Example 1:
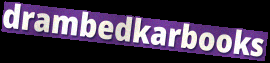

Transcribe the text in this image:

drambedkarbooks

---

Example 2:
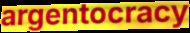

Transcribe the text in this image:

argentocracy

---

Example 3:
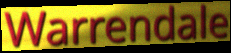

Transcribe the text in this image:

Warrendale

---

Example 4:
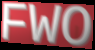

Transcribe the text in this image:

FWO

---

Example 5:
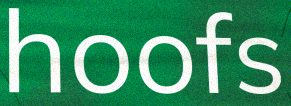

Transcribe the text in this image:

hoofs